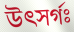
উৎসর্গঃ